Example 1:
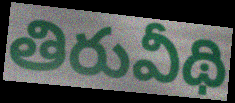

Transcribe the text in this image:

తిరువీథి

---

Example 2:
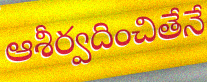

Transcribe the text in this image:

ఆశీర్వదించితేనే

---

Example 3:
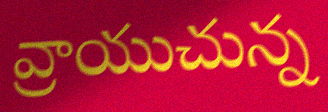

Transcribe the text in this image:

వ్రాయుచున్న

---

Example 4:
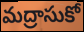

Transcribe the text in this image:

మద్రాసుకో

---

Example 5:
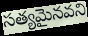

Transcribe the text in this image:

సత్యమైనవని